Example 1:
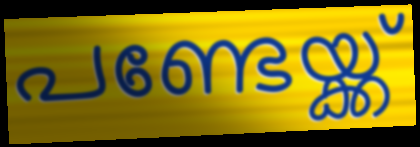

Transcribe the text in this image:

പണ്ടേയ്ക്ക്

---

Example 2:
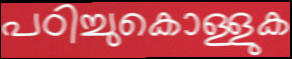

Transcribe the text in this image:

പഠിച്ചുകൊള്ളുക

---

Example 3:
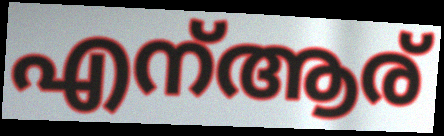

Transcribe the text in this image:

എന്ആര്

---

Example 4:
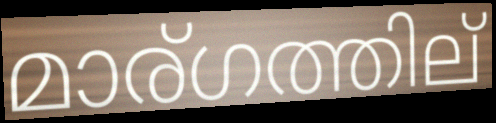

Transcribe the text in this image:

മാര്ഗത്തില്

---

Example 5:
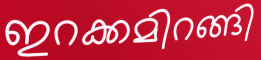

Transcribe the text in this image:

ഇറക്കമിറങ്ങി